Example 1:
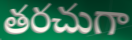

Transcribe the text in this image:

తరచుగా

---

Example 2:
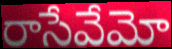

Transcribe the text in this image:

రాసేవేమో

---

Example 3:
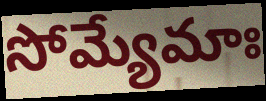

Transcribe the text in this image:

సోమ్యేమాః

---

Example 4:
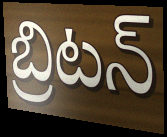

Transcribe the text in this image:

బ్రిటన్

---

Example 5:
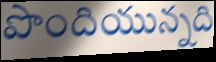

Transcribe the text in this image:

పొందియున్నది